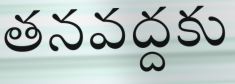
తనవద్దకు